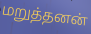
மறுத்தனன்